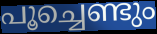
പൂച്ചെണ്ടും